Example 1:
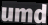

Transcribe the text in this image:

umd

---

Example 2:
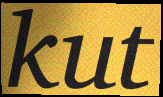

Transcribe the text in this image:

kut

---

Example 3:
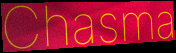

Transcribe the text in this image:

Chasma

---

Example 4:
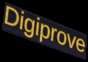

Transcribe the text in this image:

Digiprove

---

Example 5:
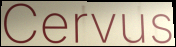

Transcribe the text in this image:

Cervus